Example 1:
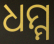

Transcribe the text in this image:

ଧମ୍ମ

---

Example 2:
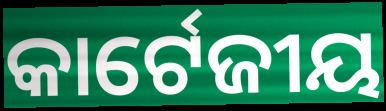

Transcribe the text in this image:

କାର୍ଟେଜୀୟ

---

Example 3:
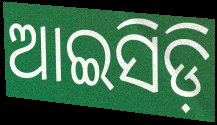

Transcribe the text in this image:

ଆଇସିଡ଼ି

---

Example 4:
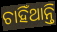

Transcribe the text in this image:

ଚାହିଁଥାନ୍ତି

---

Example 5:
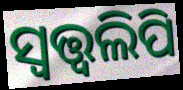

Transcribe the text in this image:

ସ୍ୱତ୍ତ୍ୱଲିପି